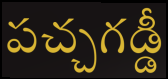
పచ్చగడ్డీ